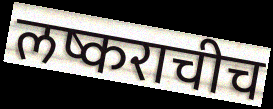
लष्कराचीच